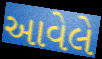
આવેલે